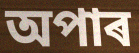
অপাৰ